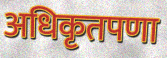
अधिकृतपणा